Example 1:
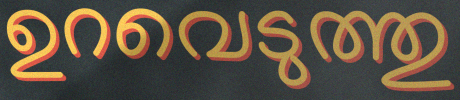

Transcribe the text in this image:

ഉറവെടുത്തു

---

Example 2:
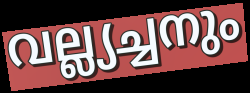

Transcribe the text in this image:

വല്ല്യച്ചനും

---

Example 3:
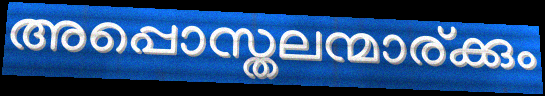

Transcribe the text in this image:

അപ്പൊസ്തലന്മാര്ക്കും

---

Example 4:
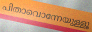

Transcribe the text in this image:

പിതാവൊന്നേയുള്ളൂ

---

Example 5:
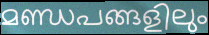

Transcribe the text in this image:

മണ്ഡപങ്ങളിലും